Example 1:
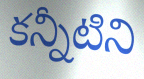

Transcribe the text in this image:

కన్నీటిని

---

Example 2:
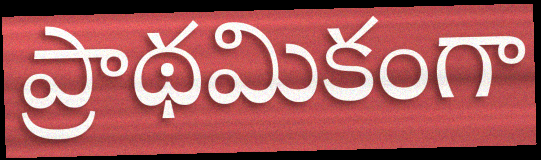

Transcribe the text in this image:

ప్రాథమికంగా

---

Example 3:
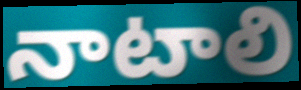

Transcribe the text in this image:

నాటాలి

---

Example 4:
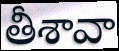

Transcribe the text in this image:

తీశావా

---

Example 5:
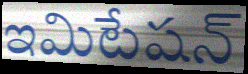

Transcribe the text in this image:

ఇమిటేషన్